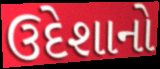
ઉદેશાનો